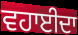
ਵਹਾਈਦਾ